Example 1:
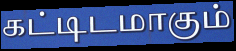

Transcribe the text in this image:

கட்டிடமாகும்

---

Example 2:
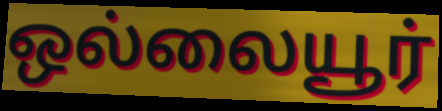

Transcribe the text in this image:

ஒல்லையூர்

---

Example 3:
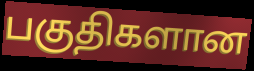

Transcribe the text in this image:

பகுதிகளான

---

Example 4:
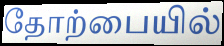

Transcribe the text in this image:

தோற்பையில்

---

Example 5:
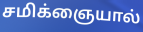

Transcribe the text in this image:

சமிக்ஞையால்